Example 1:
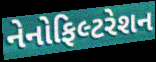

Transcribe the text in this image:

નેનોફિલ્ટરેશન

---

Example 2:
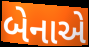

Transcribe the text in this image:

બેનાએ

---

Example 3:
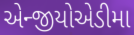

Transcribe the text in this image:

એન્જીયોએડીમા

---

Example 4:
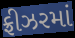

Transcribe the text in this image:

ફ્રીઝરમાં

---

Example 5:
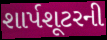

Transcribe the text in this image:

શાર્પશૂટરની